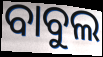
ବାବୁଲ